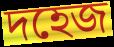
দহেজ